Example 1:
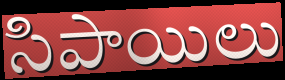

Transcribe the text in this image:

సిపాయిలు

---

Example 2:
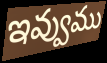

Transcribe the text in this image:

ఇవ్వుము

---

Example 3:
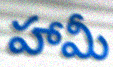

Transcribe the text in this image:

హామీ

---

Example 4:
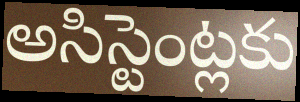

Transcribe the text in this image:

అసిస్టెంట్లకు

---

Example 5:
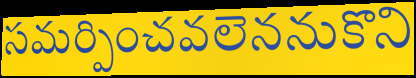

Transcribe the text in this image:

సమర్పించవలెననుకొని